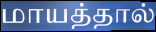
மாயத்தால்